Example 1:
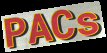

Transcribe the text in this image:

PACs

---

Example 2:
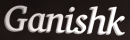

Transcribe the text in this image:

Ganishk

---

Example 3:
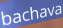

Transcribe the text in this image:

bachava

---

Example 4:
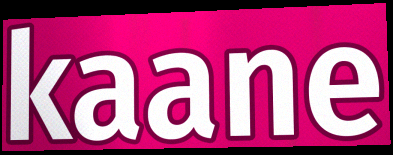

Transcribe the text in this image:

kaane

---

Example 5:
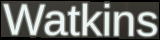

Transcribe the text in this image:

Watkins